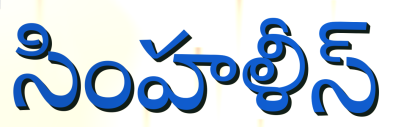
సింహళీస్